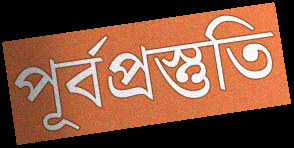
পূর্বপ্রস্তুতি